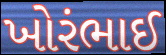
ખોરંભાઈ